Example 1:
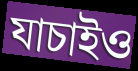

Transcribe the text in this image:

যাচাইও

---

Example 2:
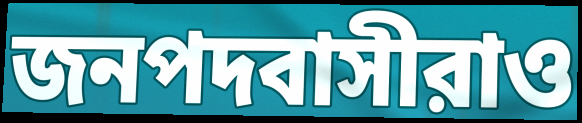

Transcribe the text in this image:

জনপদবাসীরাও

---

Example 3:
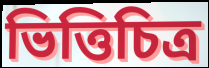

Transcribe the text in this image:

ভিত্তিচিত্র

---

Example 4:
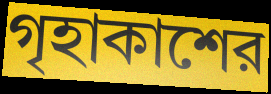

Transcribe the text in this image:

গৃহাকাশের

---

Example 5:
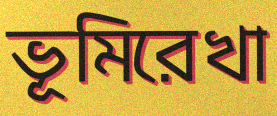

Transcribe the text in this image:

ভূমিরেখা